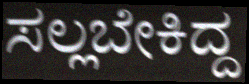
ಸಲ್ಲಬೇಕಿದ್ದ